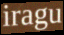
iragu